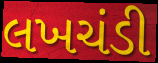
લખચંડી